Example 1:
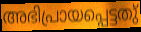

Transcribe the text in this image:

അഭിപ്രായപ്പെട്ടതു്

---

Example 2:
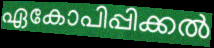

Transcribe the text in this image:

ഏകോപിപ്പിക്കൽ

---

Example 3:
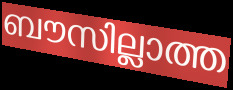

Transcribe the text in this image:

ബൗസില്ലാത്ത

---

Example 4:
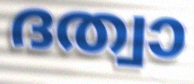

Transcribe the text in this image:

ദത്വാ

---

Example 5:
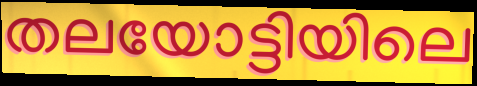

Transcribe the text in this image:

തലയോട്ടിയിലെ